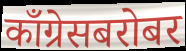
काँग्रेसबरोबर